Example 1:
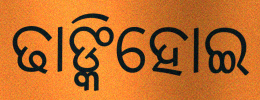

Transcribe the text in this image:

ଢାଙ୍କିହୋଇ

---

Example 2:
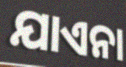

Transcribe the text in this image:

ଯାଏନା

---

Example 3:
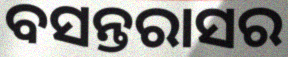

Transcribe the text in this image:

ବସନ୍ତରାସର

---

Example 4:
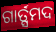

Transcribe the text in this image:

ଗାର୍ତ୍ସମଦ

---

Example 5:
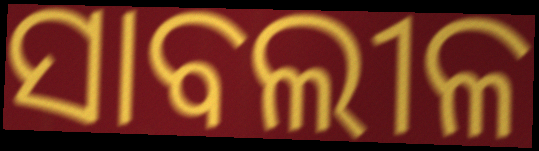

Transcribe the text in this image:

ସାବଲୀଳ